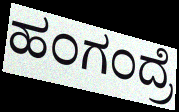
ಹಂಗಂದ್ರೆ